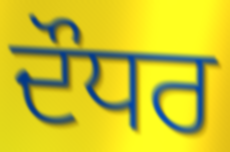
ਦੌਧਰ